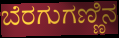
ಬೆರಗುಗಣ್ಣಿನ